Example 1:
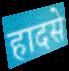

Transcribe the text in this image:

हादसे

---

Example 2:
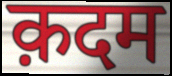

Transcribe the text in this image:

क़दम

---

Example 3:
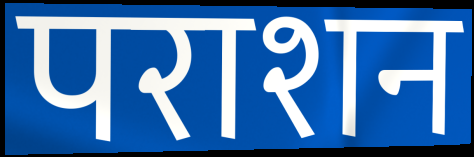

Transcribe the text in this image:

पराशन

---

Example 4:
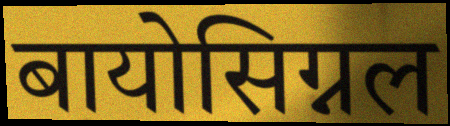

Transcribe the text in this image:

बायोसिग्नल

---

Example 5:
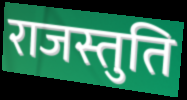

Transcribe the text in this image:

राजस्तुति